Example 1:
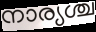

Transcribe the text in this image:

നാര്യശ്ച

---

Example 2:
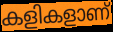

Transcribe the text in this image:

കളികളാണ്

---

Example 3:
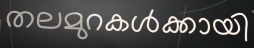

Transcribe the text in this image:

തലമുറകൾക്കായി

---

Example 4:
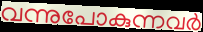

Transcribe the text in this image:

വന്നുപോകുന്നവർ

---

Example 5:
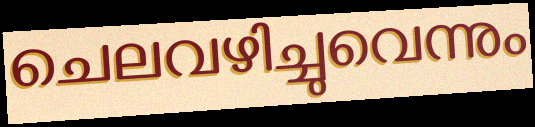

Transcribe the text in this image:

ചെലവഴിച്ചുവെന്നും